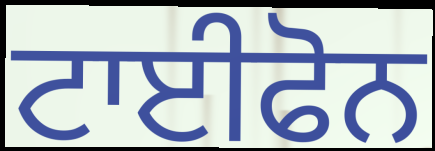
ਟਾਈਫੋਨ